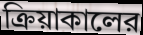
ক্রিয়াকালের